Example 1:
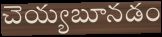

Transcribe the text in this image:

చెయ్యబూనడం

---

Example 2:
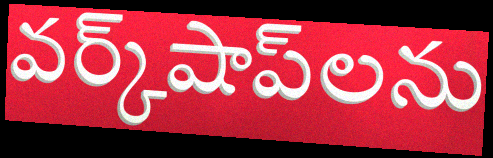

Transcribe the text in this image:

వర్క్‌షాప్‌లను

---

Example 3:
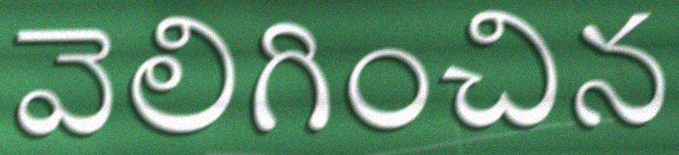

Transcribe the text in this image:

వెలిగించిన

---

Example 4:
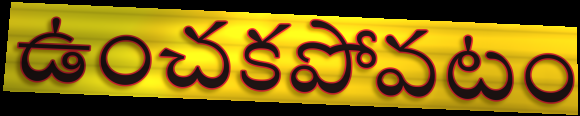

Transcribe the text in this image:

ఉంచకపోవటం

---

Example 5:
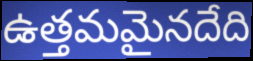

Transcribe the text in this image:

ఉత్తమమైనదేది